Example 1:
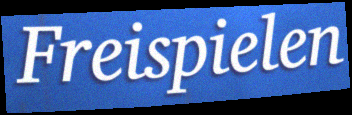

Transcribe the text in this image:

Freispielen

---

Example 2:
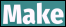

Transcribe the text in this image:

Make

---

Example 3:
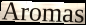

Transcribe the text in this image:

Aromas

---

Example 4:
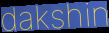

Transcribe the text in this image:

dakshin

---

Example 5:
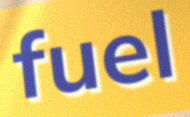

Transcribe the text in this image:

fuel